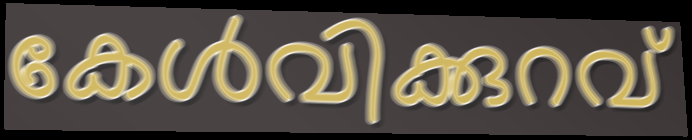
കേൾവിക്കുറവ്